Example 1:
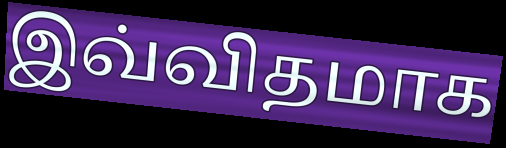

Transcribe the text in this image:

இவ்விதமாக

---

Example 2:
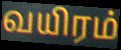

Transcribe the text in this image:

வயிரம்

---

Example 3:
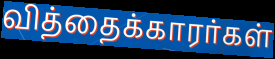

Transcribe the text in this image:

வித்தைக்காரர்கள்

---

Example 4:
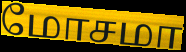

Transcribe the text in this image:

மோசமா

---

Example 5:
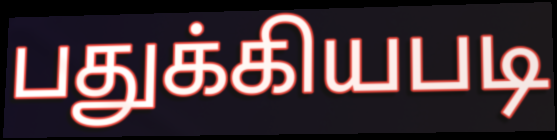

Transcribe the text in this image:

பதுக்கியபடி